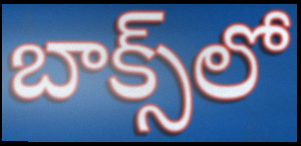
బాక్స్‌లో